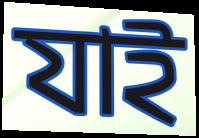
যাই